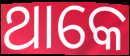
ଥାକେ